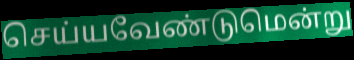
செய்யவேண்டுமென்று